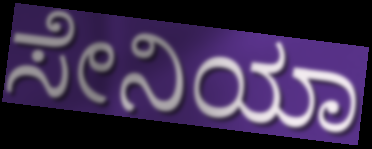
ಸೇನಿಯಾ